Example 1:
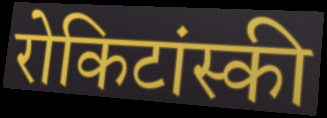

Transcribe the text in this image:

रोकिटांस्की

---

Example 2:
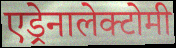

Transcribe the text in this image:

एड्रेनालेक्टोमी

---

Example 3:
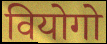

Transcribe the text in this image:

वियोगो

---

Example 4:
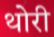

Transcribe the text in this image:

थोरी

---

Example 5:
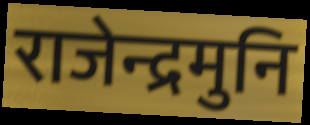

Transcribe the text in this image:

राजेन्द्रमुनि